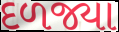
દળજ્યા